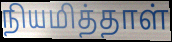
நியமித்தாள்